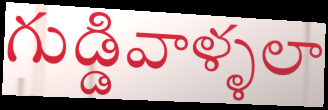
గుడ్డివాళ్ళలా